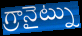
గ్రానైట్ను